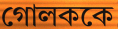
গোলককে